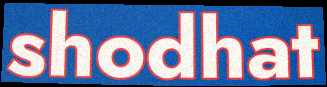
shodhat